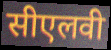
सीएलवी